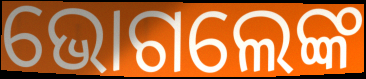
ଭୋଗଲେଙ୍କ